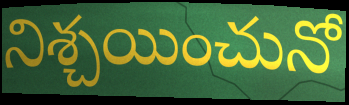
నిశ్చయించునో